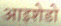
आइशेडो